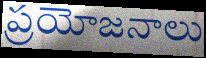
ప్రయోజనాలు